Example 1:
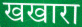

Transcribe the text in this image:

खखारा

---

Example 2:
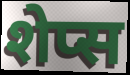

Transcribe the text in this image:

शेप्स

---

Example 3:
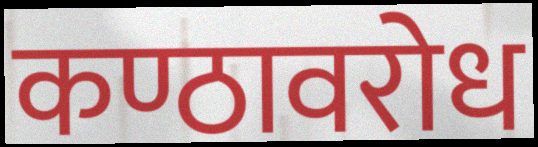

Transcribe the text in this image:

कण्ठावरोध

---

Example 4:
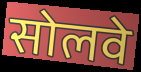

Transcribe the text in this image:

सोलवे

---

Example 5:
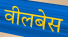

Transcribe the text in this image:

वीलबेस